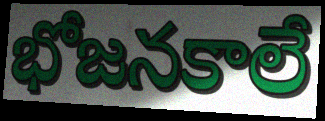
భోజనకాలే